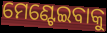
ମେଣ୍ଟେଇବାକୁ